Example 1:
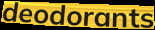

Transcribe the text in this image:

deodorants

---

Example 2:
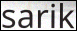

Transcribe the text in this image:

sarik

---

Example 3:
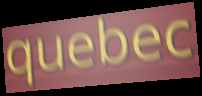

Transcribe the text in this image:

quebec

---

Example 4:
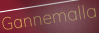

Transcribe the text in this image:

Gannemalla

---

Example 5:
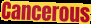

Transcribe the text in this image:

Cancerous